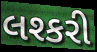
લશ્કરી